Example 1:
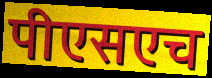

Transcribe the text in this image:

पीएसएच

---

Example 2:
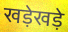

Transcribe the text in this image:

खड़ेखड़े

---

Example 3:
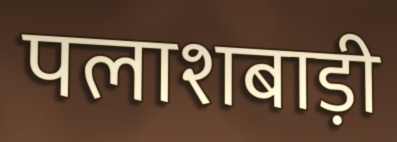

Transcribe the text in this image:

पलाशबाड़ी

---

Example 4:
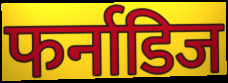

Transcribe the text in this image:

फर्नाडिज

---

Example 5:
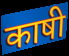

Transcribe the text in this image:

काषी